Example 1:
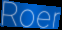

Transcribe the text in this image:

Roer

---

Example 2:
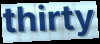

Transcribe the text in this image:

thirty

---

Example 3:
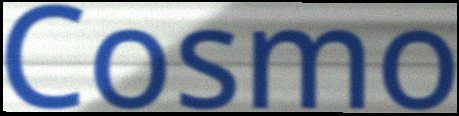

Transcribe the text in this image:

Cosmo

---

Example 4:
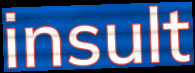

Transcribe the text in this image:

insult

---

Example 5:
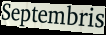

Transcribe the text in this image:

Septembris